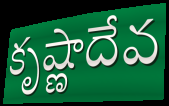
కృష్ణాదేవ